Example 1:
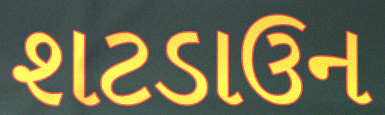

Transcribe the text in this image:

શટડાઉન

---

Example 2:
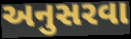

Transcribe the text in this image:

અનુસરવા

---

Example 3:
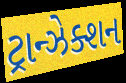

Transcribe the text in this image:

ટ્રાન્ઝેક્શન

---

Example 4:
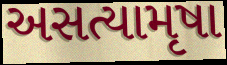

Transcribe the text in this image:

અસત્યામૃષા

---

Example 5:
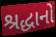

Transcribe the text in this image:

શ્રદ્ધાનો